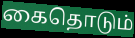
கைதொடும்